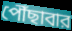
পৌঁছাবার